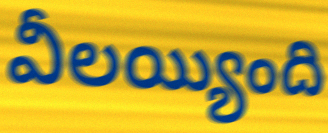
వీలయ్యింది